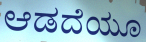
ಆಡದೆಯೂ